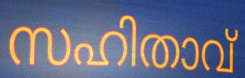
സഹിതാവ്